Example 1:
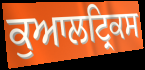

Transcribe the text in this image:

ਕੁਆਲਟ੍ਰਿਕਸ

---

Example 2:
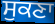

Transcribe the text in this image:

ਸੁਕਣਾ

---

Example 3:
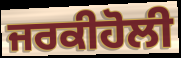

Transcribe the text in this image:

ਜਰਕੀਹੋਲੀ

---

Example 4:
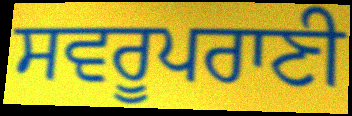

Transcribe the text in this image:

ਸਵਰੂਪਰਾਣੀ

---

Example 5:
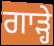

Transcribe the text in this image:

ਗਾੜ੍ਹੇ